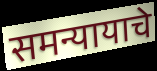
समन्यायाचे